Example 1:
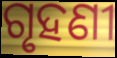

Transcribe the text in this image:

ଗୃହଣୀ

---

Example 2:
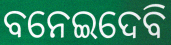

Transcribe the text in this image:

ବନେଇଦେବି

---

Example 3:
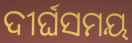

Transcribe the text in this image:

ଦୀର୍ଘସମୟ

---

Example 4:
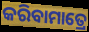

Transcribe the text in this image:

କରିବାମାତ୍ରେ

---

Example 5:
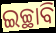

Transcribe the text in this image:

ଇଚ୍ଛାବି